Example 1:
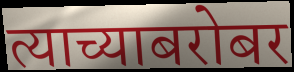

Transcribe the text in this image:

त्याच्याबरोबर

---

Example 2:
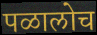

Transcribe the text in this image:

पळालोच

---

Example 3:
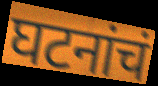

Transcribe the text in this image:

घटनांचं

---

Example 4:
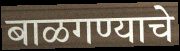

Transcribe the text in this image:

बाळगण्याचे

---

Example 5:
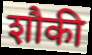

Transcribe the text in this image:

शौकी